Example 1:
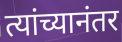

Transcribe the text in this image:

त्यांच्यानंतर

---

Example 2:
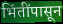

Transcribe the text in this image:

भिंतींपासून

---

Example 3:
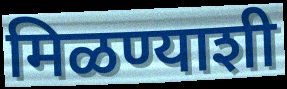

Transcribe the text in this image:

मिळण्याशी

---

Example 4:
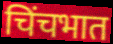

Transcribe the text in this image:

चिंचभात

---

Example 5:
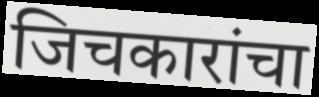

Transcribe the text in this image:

जिचकारांचा